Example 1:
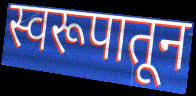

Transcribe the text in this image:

स्वरूपातून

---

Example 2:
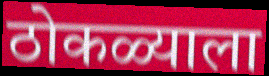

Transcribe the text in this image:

ठोकळ्याला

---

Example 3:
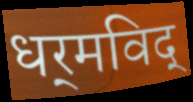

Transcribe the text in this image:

धर्मविद्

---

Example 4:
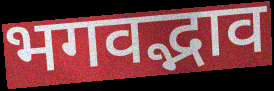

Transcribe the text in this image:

भगवद्भाव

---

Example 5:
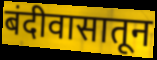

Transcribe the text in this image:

बंदीवासातून